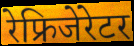
रेफ्रिजेरेटर